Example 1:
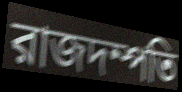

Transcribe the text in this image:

রাজদম্পতি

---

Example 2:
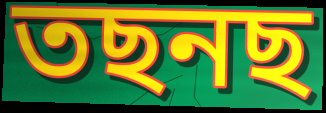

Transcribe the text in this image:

তছনছ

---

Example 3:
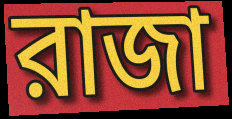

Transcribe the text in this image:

রাজা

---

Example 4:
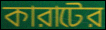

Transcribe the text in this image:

কারাটের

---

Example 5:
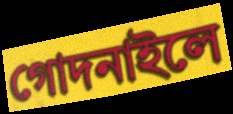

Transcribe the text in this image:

গোদনাইলে